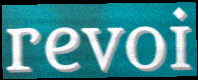
revoi